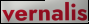
vernalis